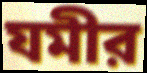
যমীর